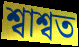
শ্বাশ্বত